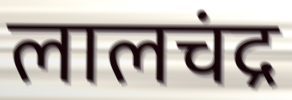
लालचंद्र